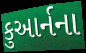
કુઆર્નના